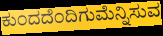
ಕುಂದದೆಂದಿಗುಮೆನ್ನಿಸುವ